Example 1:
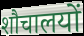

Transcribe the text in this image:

शौचालयों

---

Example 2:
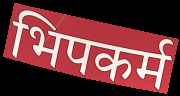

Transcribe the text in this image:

भिपकर्म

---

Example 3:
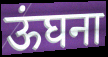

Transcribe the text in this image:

ऊंघना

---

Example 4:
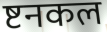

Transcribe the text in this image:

ष्टनकल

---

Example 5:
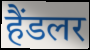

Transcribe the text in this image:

हैंडलर